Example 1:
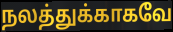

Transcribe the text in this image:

நலத்துக்காகவே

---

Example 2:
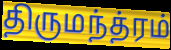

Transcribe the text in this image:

திருமந்த்ரம்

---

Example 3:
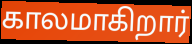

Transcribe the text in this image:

காலமாகிறார்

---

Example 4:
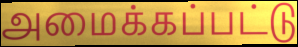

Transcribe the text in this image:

அமைக்கப்பட்டு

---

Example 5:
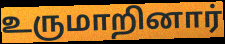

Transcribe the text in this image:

உருமாறினார்